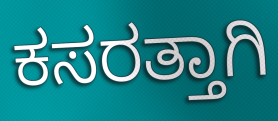
ಕಸರತ್ತಾಗಿ